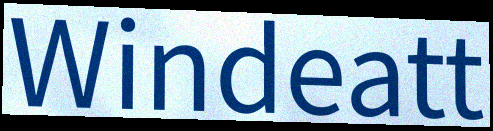
Windeatt